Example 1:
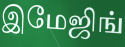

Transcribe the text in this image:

இமேஜிங்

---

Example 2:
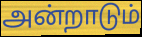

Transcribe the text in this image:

அன்றாடும்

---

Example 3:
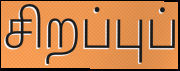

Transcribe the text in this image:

சிறப்புப்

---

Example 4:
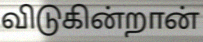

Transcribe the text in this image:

விடுகின்றான்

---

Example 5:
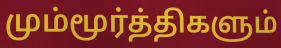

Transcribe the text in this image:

மும்மூர்த்திகளும்